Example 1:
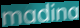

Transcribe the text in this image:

madina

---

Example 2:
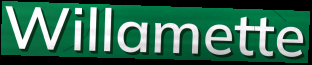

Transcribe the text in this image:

Willamette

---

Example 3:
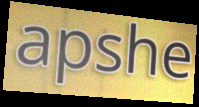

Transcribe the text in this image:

apshe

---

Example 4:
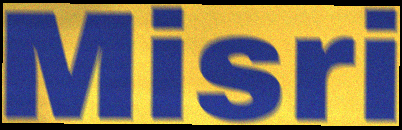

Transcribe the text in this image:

Misri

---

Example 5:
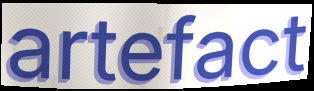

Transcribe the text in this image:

artefact